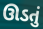
ઊડતું